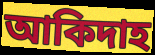
আকিদাহ